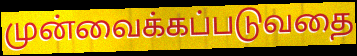
முன்வைக்கப்படுவதை